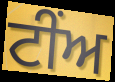
ਟੀਂਅ